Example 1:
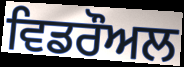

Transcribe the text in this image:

ਵਿਡਰੌਅਲ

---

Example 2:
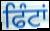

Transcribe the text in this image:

ਫਿੰਟਾਂ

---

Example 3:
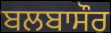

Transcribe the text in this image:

ਬਲਬਾਸੌਰ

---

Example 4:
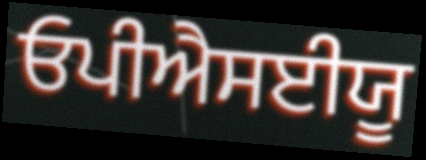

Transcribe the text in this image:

ਓਪੀਐਸਈਯੂ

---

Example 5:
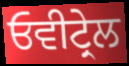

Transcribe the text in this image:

ਓਵੀਟ੍ਰੇਲ